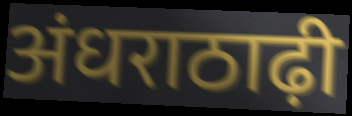
अंधराठाढ़ी